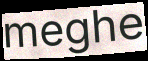
meghe